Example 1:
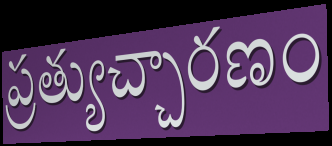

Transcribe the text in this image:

ప్రత్యుచ్చారణం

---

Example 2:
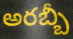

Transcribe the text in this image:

అరబ్బీ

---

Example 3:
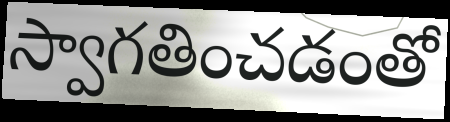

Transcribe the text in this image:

స్వాగతించడంతో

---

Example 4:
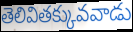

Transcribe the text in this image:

తెలివితక్కువవాడు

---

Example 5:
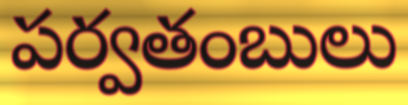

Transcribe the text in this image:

పర్వతంబులు